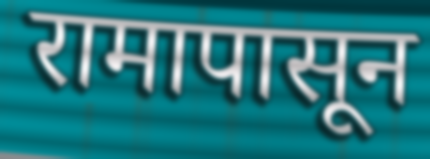
रामापासून